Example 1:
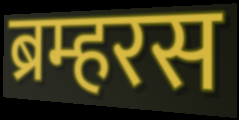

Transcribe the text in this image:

ब्रम्हरस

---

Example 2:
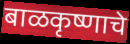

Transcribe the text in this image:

बाळकृष्णाचे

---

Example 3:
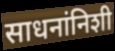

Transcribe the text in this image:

साधनांनिशी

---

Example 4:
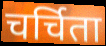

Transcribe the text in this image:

चर्चिता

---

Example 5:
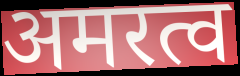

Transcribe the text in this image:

अमरत्व